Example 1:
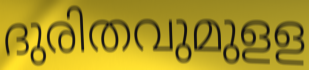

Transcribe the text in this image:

ദുരിതവുമുളള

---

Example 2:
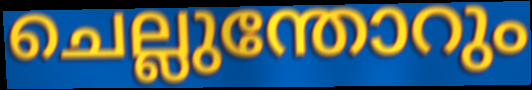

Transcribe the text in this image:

ചെല്ലുന്തോറും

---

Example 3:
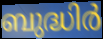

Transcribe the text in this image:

ബുദ്ധിർ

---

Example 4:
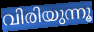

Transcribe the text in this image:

വിരിയുന്നൂ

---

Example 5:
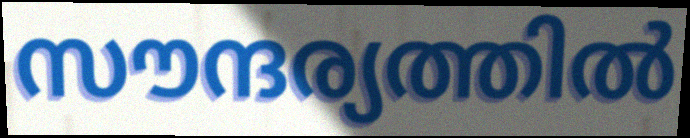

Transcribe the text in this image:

സൗന്ദര്യത്തിൽ